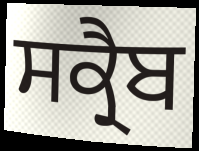
ਸਕ੍ਰੈਬ